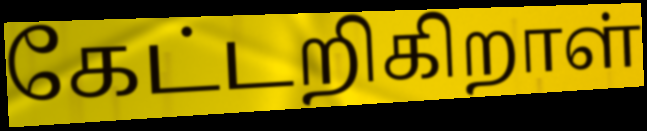
கேட்டறிகிறாள்